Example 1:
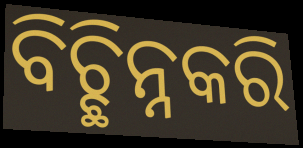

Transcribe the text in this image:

ବିଚ୍ଛିନ୍ନକରି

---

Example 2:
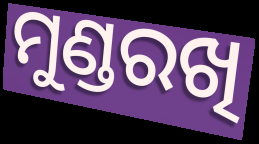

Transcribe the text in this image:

ମୁଣ୍ଡରଖି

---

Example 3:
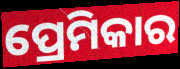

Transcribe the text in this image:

ପ୍ରେମିକାର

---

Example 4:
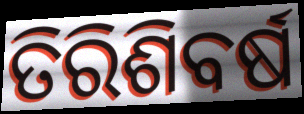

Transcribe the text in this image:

ତିରିଶିବର୍ଷ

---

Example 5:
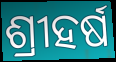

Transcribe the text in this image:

ଶ୍ରୀହର୍ଷ